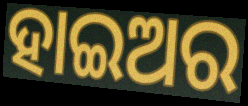
ହାଇଅର